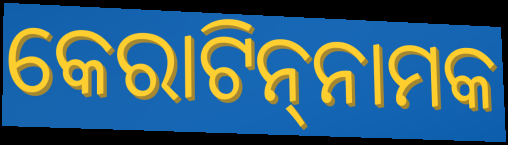
କେରାଟିନ୍‌ନାମକ